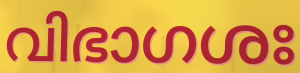
വിഭാഗശഃ